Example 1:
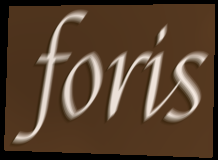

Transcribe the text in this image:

foris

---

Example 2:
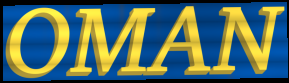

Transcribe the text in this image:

OMAN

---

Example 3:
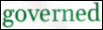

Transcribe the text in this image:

governed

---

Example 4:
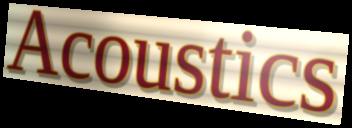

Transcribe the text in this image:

Acoustics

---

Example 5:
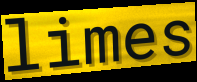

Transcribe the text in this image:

limes